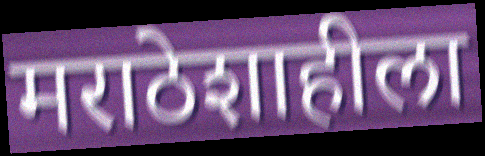
मराठेशाहीला